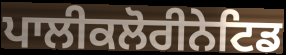
ਪਾਲੀਕਲੋਰੀਨੇਟਿਡ